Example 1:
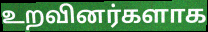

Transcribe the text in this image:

உறவினர்களாக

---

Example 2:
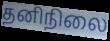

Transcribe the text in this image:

தனிநிலை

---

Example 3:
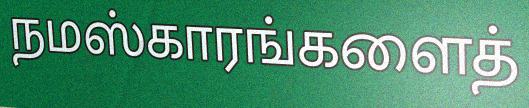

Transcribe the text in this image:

நமஸ்காரங்களைத்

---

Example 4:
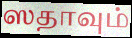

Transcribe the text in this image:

ஸதாவும்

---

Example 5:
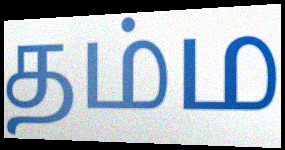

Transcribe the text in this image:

தம்ம